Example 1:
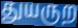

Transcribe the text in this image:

துயருற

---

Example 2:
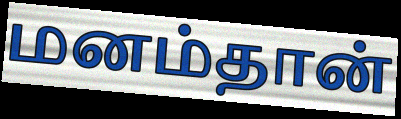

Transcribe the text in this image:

மனம்தான்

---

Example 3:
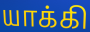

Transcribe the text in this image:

யாக்கி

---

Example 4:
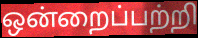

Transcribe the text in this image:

ஒன்றைப்பற்றி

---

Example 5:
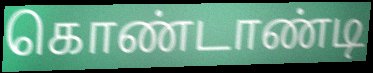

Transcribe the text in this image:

கொண்டாண்டி